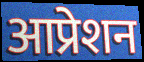
आप्रेशन